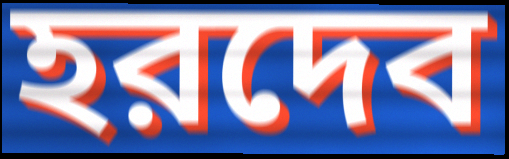
হরদেব